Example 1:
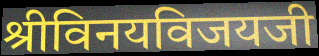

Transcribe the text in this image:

श्रीविनयविजयजी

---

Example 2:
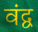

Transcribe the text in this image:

वंद्व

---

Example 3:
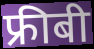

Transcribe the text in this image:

फ्रीबी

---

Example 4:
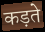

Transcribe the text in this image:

कड़ते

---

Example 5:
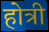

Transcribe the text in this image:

होत्री